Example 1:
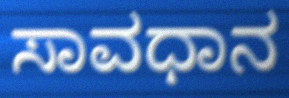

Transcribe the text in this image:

ಸಾವಧಾನ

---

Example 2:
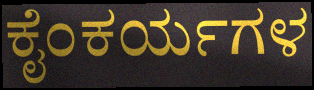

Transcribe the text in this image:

ಕೈಂಕರ್ಯಗಳ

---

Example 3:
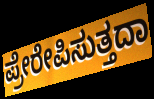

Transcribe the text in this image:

ಪ್ರೇರೇಪಿಸುತ್ತದಾ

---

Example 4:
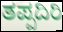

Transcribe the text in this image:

ತಪ್ಪದಿರಿ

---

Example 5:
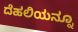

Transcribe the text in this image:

ದೆಹಲಿಯನ್ನೂ